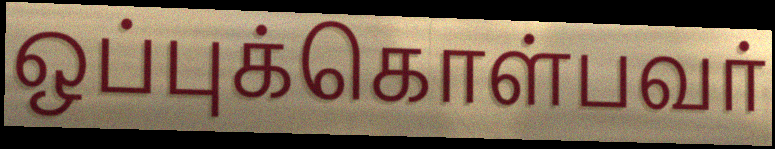
ஒப்புக்கொள்பவர்